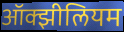
ऑक्झीलियम